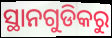
ସ୍ଥାନଗୁଡିକରୁ